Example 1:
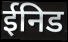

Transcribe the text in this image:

ईनिड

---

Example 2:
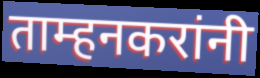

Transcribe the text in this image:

ताम्हनकरांनी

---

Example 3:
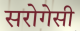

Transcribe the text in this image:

सरोगेसी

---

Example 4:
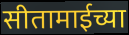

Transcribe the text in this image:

सीतामाईच्या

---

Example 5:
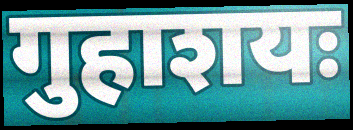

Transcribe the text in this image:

गुहाशयः